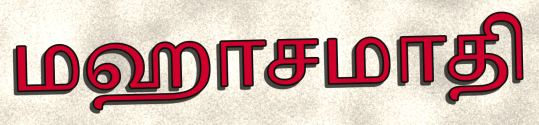
மஹாசமாதி